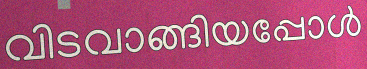
വിടവാങ്ങിയപ്പോൾ